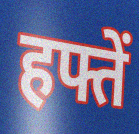
हफ्तें